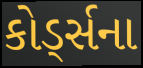
કોર્ડ્સના